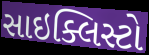
સાઇક્લિસ્ટો